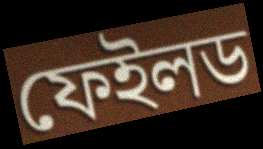
ফেইলড